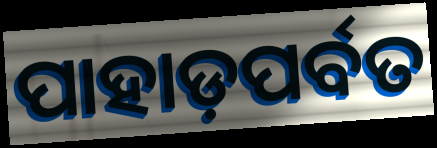
ପାହାଡ଼ପର୍ବତ